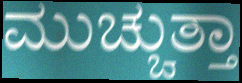
ಮುಚ್ಚುತ್ತಾ